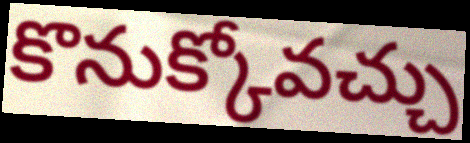
కొనుక్కోవచ్చు